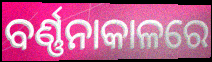
ବର୍ଣ୍ଣନାକାଳରେ